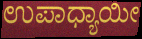
ಉಪಾಧ್ಯಾಯೀ